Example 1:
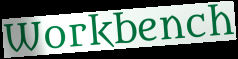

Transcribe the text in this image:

Workbench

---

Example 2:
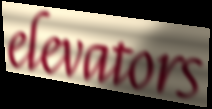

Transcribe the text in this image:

elevators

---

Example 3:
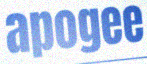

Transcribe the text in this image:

apogee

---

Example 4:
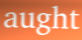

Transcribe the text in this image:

aught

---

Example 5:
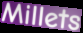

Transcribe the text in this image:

Millets